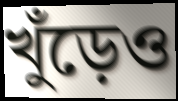
খুঁড়েও